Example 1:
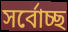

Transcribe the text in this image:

সৰ্বোচ্ছ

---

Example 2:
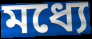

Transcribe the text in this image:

মধ্যে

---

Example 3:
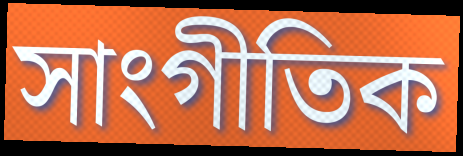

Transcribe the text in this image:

সাংগীতিক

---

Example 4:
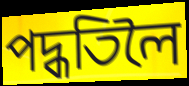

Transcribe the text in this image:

পদ্ধতিলৈ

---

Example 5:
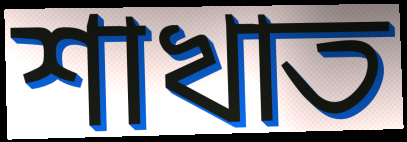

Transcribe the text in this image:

শাখাত